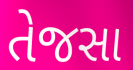
તેજસા